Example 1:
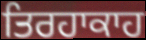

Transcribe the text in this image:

ਤਿਰਹਾਕਾਹ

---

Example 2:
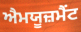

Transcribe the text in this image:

ਐਮਯੂਜ਼ਮੈਂਟ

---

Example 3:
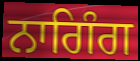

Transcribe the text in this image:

ਨਾਗਿੰਗ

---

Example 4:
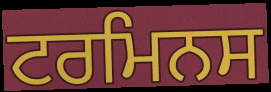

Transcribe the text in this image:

ਟਰਮਿਨਸ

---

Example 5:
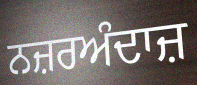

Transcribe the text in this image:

ਨਜ਼ਰਅੰਦਾਜ਼